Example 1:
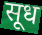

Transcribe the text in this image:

सूध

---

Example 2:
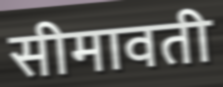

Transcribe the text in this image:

सीमावती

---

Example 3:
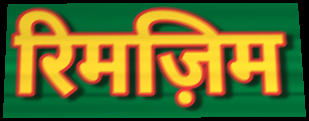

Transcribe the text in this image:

रिमज़िम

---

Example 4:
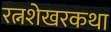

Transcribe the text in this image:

रत्नशेखरकथा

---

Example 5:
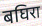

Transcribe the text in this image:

बघिरा